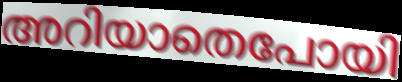
അറിയാതെപോയി